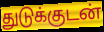
துடுக்குடன்